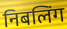
निबलिंग